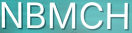
NBMCH